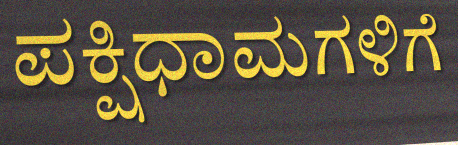
ಪಕ್ಷಿಧಾಮಗಳಿಗೆ